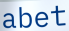
abet